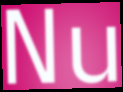
Nu